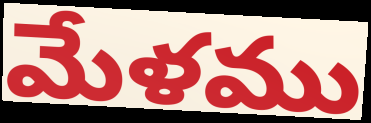
మేళము